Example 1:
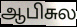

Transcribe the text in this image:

ஆபிசுல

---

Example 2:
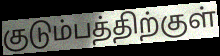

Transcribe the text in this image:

குடும்பத்திற்குள்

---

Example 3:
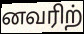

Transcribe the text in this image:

னவரிற்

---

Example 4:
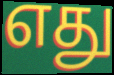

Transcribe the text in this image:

எது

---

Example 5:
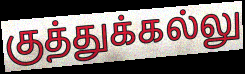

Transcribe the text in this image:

குத்துக்கல்லு